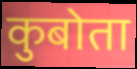
कुबोता